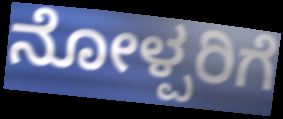
ನೋಳ್ಪರಿಗೆ